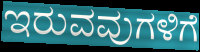
ಇರುವವುಗಳಿಗೆ